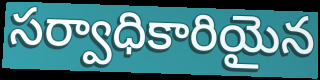
సర్వాధికారియైన